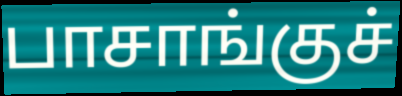
பாசாங்குச்